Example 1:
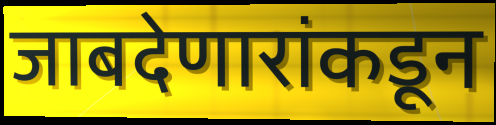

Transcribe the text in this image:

जाबदेणारांकडून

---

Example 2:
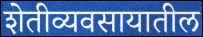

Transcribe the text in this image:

शेतीव्यवसायातील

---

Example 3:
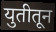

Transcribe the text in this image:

युतीतून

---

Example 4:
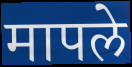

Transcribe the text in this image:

मापले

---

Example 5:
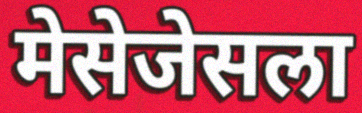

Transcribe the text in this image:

मेसेजेसला